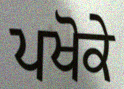
ਪਖੋਕੇ